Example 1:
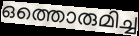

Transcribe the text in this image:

ഒത്തൊരുമിച്ച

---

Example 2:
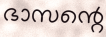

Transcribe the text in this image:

ഭാസന്റെ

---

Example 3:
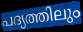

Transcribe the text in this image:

പദ്യത്തിലും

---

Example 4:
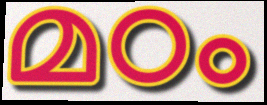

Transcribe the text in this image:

മഠം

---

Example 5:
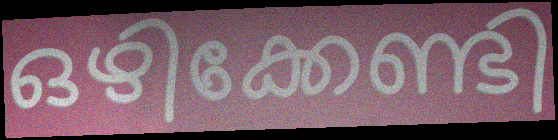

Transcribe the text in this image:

ഒഴിക്കേണ്ടി